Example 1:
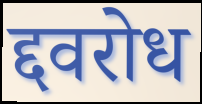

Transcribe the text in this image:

द्दवरोध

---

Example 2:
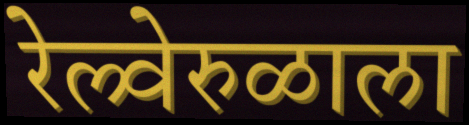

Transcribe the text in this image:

रेल्वेरुळाला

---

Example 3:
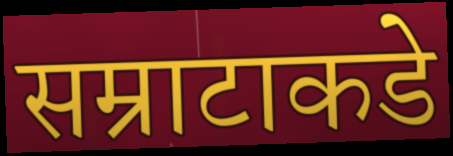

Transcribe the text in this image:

सम्राटाकडे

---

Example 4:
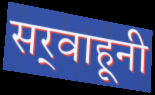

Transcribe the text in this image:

सर्वाहूनी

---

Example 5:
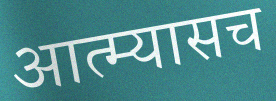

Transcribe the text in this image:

आत्म्यासच